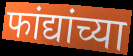
फांद्यांच्या